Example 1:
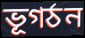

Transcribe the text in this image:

ভূগঠন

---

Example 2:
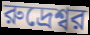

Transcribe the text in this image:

রুদ্রেশ্বর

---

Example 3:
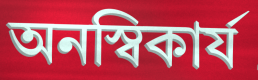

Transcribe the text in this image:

অনস্বিকার্য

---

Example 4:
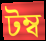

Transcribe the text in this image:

টম্ব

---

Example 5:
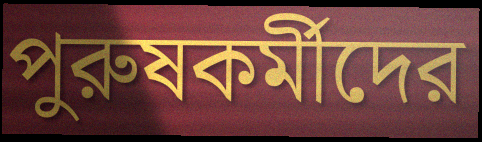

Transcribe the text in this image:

পুরুষকর্মীদের